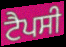
ਟੈਪਸੀ